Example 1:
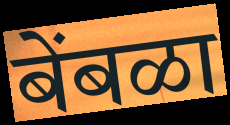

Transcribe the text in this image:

बेंबळा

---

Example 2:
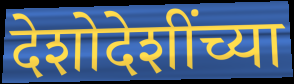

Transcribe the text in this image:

देशोदेशींच्या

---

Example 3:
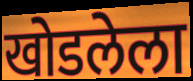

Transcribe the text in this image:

खोडलेला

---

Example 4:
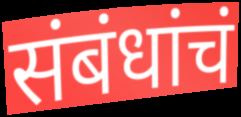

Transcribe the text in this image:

संबंधांचं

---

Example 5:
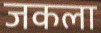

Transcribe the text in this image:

जकला